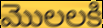
మొలలకి